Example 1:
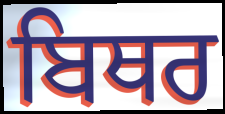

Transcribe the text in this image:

ਬਿਥਰ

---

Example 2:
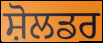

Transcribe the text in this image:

ਸ਼ੋਲਡਰ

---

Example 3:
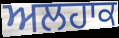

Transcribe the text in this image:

ਅਲਹਾਕ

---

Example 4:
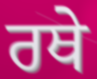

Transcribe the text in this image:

ਰਥੇ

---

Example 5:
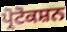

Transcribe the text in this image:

ਪ੍ਰੋਟੋਕਸ਼ਨ